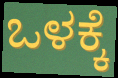
ಒಳಕ್ಕೆ